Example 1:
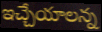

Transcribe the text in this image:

ఇచ్చేయాలన్న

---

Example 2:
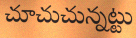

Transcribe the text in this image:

చూచుచున్నట్టు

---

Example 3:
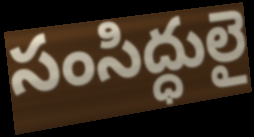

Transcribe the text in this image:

సంసిద్ధులై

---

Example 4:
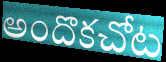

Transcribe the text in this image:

అందొకచోట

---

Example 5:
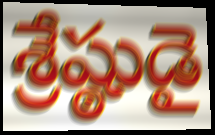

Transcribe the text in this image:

శ్రేష్ఠుడై